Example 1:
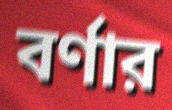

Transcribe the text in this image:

বর্ণার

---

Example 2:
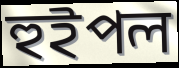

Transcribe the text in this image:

হুইপল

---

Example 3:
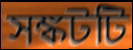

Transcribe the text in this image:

সঙ্কটটি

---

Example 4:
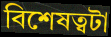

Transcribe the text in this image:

বিশেষত্বটা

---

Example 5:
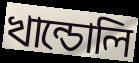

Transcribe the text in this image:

খান্ডোলি